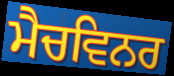
ਮੈਚਵਿਨਰ